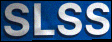
SLSS